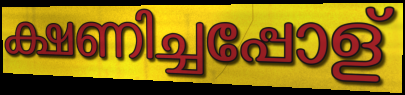
ക്ഷണിച്ചപ്പോള്